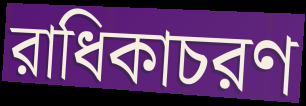
রাধিকাচরণ